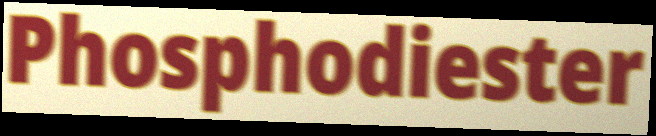
Phosphodiester